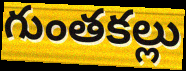
గుంతకల్లు